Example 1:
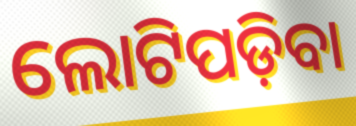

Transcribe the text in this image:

ଲୋଟିପଡ଼ିବା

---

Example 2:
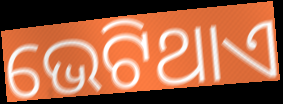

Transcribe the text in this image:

ଭେଟିଥାଏ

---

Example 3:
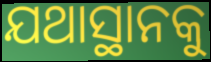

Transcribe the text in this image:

ଯଥାସ୍ଥାନକୁ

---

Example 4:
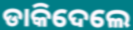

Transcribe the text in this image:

ଡାକିଦେଲେ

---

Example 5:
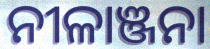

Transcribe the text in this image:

ନୀଳାଞ୍ଜନା